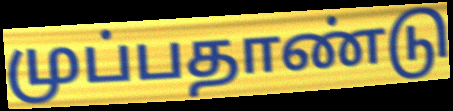
முப்பதாண்டு